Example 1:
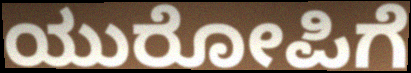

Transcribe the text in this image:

ಯುರೋಪಿಗೆ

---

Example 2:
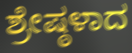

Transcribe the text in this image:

ಶ್ರೇಷ್ಠಳಾದ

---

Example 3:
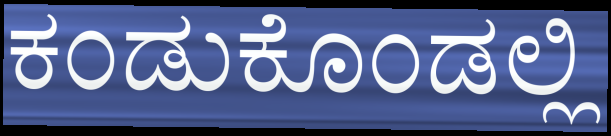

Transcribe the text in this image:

ಕಂಡುಕೊಂಡಲ್ಲಿ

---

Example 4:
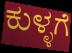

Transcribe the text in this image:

ಕುಳ್ಳಗೆ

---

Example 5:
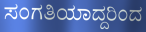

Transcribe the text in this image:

ಸಂಗತಿಯಾದ್ದರಿಂದ